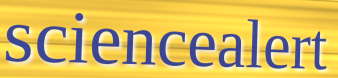
sciencealert